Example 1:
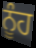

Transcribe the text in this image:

ਨੂੰਹ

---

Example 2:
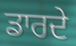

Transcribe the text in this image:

ਡਾਰਦੇ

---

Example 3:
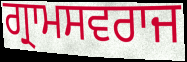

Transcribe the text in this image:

ਗ੍ਰਾਮਸਵਰਾਜ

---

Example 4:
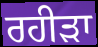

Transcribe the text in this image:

ਰਹੀੜਾ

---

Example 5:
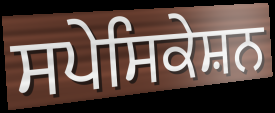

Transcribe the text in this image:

ਸਪੇਸਿਕੇਸ਼ਨ